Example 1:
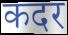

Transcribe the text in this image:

कदर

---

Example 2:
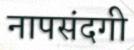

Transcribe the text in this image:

नापसंदगी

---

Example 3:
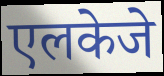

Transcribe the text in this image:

एलकेजे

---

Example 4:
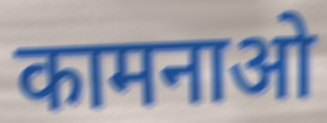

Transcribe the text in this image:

कामनाओ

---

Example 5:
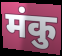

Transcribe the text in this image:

मंकु